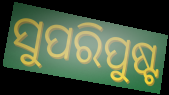
ସୁପରିପୁଷ୍ଟ